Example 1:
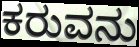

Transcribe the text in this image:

ಕರುವನು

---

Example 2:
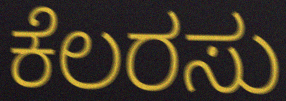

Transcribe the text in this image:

ಕೆಲರಸು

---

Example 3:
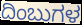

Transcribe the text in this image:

ದಿಂಬುಗಳ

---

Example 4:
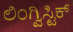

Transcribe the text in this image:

ಲಿಂಗ್ವಿಸ್ಟಿಕ್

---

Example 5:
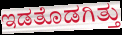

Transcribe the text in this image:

ಇಡತೊಡಗಿತ್ತು